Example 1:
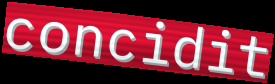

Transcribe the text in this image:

concidit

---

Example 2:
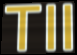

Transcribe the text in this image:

TII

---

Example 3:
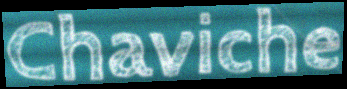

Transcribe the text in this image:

Chaviche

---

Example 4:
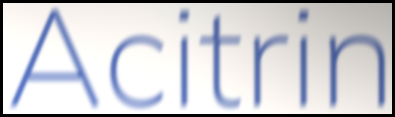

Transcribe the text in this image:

Acitrin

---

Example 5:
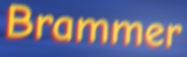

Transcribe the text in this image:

Brammer